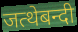
जत्थेबन्दी